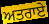
ਅਤਰਾਏ